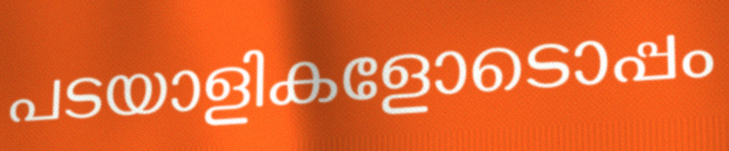
പടയാളികളോടൊപ്പം